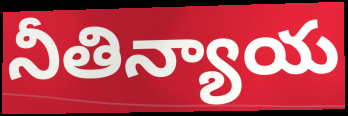
నీతిన్యాయ